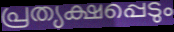
പ്രത്യക്ഷപ്പെടും